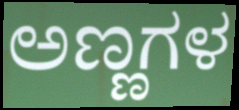
ಅಣ್ಣಗಳ